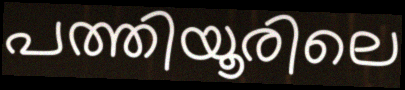
പത്തിയൂരിലെ